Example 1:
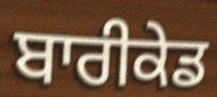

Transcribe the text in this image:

ਬਾਰੀਕੇਡ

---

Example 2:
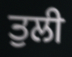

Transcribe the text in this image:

ਤੁਲੀ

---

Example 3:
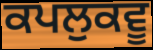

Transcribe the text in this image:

ਕਪਲੁਕਵੂ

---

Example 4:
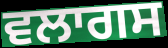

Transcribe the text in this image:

ਵਲਾਗਸ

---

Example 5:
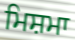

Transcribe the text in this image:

ਮਿਸ਼ਮਾ